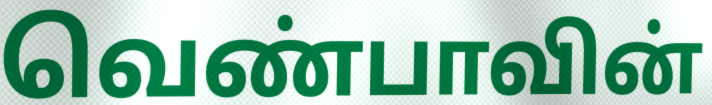
வெண்பாவின்